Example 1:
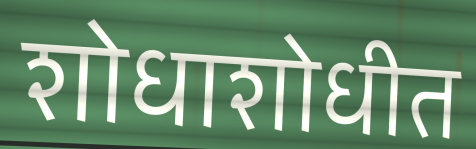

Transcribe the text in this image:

शोधाशोधीत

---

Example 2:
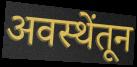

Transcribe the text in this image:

अवस्थेंतून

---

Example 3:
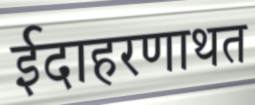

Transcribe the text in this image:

ईदाहरणाथत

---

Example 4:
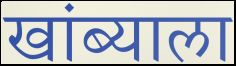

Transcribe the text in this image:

खांब्याला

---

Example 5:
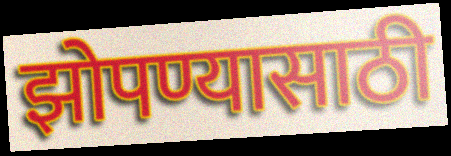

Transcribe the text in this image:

झोपण्यासाठी